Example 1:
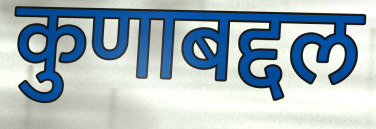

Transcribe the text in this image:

कुणाबद्दल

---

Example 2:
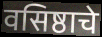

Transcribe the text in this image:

वसिष्ठाचे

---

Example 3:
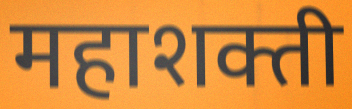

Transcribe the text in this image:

महाशक्‍ती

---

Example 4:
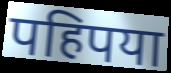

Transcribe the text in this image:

पहिपया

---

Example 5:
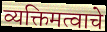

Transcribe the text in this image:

व्यक्तिमत्वाचे